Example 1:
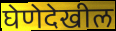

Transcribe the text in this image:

घेणेदेखील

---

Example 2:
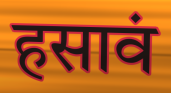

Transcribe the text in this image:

हसावं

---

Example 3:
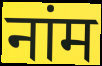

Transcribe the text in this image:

नांम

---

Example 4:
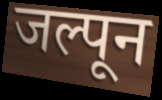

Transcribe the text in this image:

जल्पून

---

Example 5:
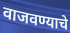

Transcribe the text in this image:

वाजवण्याचे